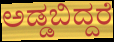
ಅಡ್ಡಬಿದ್ದರೆ